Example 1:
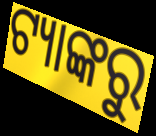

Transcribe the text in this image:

ଟ୍ୟାଙ୍କରୁ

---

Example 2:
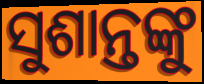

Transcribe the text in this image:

ସୁଶାନ୍ତଙ୍କୁ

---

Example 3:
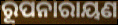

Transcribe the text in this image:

ରୂପନାରାୟଣ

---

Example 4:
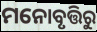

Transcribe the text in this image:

ମନୋବୃତ୍ତିରୁ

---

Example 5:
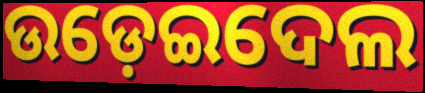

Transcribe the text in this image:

ଉଡ଼େଇଦେଲ